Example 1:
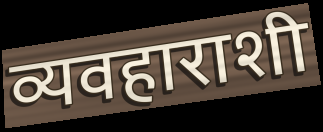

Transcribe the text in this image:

व्यवहाराशी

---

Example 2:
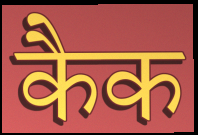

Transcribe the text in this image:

कैक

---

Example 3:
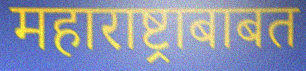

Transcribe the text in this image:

महाराष्ट्राबाबत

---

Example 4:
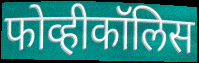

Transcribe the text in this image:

फोव्हीकॉलिस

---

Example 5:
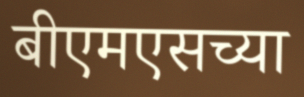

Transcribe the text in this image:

बीएमएसच्या